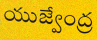
యుజ్వేంద్ర